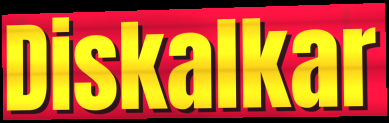
Diskalkar